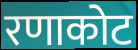
रणाकोट